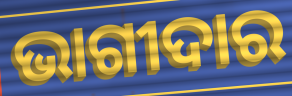
ଭାଗୀଦାର